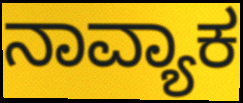
ನಾವ್ಯಾಕ